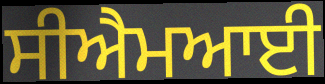
ਸੀਐਮਆਈ